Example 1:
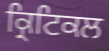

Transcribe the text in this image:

ਕ੍ਰਿਟਿਕਲ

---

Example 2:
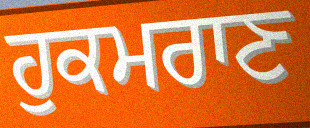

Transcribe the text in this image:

ਹੁਕਮਰਾਣ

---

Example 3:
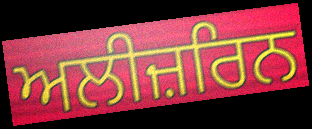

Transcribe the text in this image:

ਅਲੀਜ਼ਰਿਨ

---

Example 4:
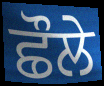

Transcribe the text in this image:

ਛੌਲੇ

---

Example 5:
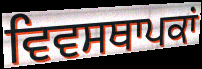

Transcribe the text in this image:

ਵਿਵਸਥਾਪਕਾਂ